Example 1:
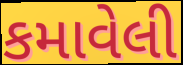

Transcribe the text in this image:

કમાવેલી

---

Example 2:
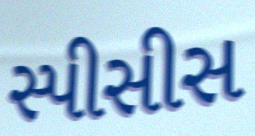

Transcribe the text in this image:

સ્પીસીસ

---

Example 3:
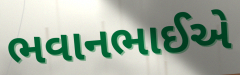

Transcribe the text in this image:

ભવાનભાઈએ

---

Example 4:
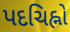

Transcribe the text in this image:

પદચિહ્નો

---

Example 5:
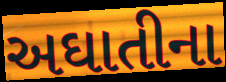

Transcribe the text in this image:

અઘાતીના